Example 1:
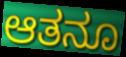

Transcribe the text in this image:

ಆತನೂ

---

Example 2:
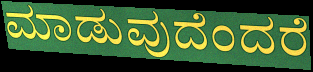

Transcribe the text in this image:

ಮಾಡುವುದೆಂದರೆ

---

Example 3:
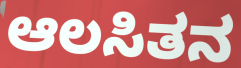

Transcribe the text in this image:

ಆಲಸಿತನ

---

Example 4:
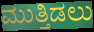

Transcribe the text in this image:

ಮುತ್ತಿಡಲು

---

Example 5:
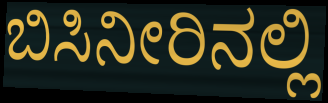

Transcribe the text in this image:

ಬಿಸಿನೀರಿನಲ್ಲಿ